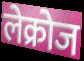
लेक्रोज